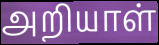
அறியாள்